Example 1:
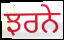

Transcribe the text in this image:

ਝਰਨੇ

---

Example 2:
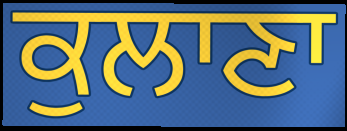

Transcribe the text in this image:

ਕੁਲਾਣਾ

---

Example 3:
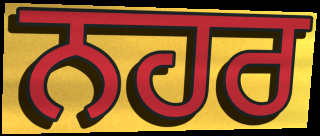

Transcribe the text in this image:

ਨਹਰ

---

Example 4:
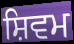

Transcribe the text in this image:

ਸ਼ਿਵਮ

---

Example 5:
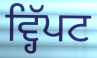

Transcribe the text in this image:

ਵ੍ਹਿੱਪਟ